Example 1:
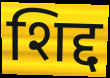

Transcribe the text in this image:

शिद्द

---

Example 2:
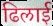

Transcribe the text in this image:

ढिलाई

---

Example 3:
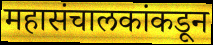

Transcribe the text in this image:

महासंचालकांकडून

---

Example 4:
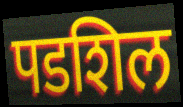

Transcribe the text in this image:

पडशिल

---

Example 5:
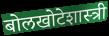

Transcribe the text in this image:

बोलखोटेशास्त्री